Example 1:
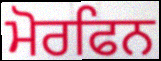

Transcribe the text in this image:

ਮੋਰਫਿਨ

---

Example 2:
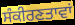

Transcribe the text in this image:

ਸੰਕੀਰਣਤਾਵਾਂ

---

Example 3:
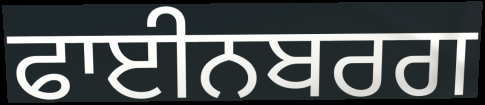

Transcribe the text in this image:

ਫਾਈਨਬਰਗ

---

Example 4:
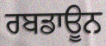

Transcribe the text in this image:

ਰਬਡਾਊਨ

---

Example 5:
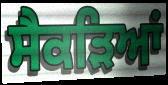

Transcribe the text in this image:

ਸੈਕੜਿਆਂ